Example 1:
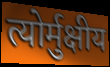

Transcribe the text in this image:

त्योर्मुक्षीय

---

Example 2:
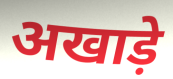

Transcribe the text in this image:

अखाड़े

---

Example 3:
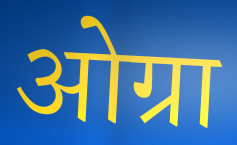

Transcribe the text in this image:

ओग्रा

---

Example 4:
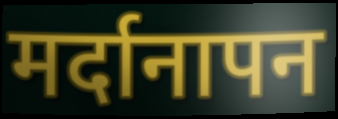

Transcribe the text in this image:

मर्दानापन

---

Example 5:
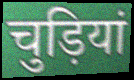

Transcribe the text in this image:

चुड़ियां